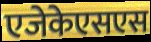
एजेकेएसएस